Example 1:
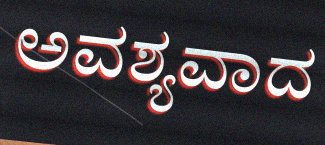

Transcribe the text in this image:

ಅವಶ್ಯವಾದ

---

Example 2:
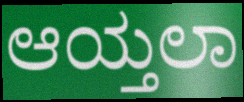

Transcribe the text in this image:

ಆಯ್ತಲಾ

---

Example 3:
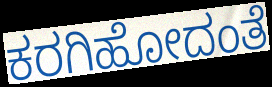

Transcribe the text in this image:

ಕರಗಿಹೋದಂತೆ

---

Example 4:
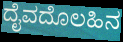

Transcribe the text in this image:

ದೈವದೊಲಹಿನ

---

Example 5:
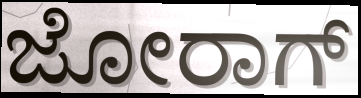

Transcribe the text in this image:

ಜೋರಾಗ್